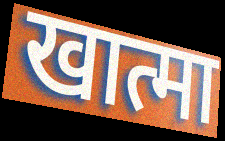
खात्मा